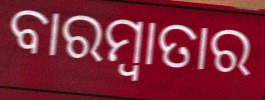
ବାରମ୍ବାତାର